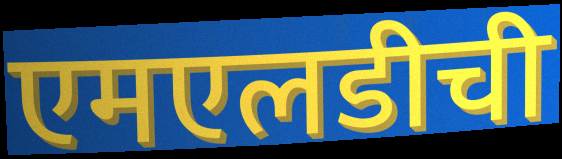
एमएलडीची